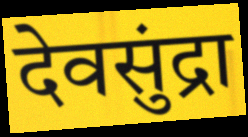
देवसुंद्रा